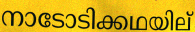
നാടോടിക്കഥയില്